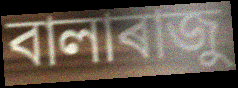
বালাৰাজু